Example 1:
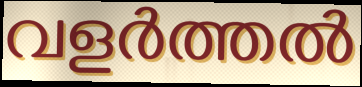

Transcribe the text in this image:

വളർത്തൽ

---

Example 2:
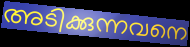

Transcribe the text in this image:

അടിക്കുന്നവനെ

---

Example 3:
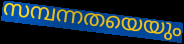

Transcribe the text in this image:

സമ്പന്നതയെയും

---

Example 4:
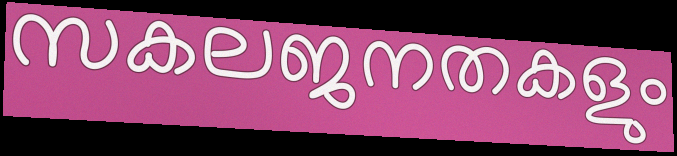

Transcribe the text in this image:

സകലജനതകളും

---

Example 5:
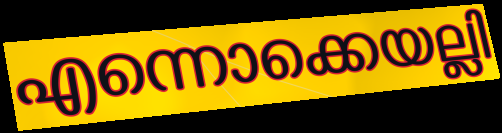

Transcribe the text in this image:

എന്നൊക്കെയല്ലി